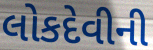
લોકદેવીની